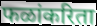
फळांकरिता